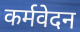
कर्मवेदन